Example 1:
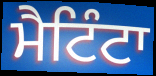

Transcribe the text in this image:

ਮੈਟਿੰਟਾ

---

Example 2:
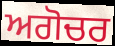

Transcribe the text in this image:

ਅਗੋਚਰ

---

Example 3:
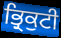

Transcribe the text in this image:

ਭ੍ਰਿਕੁਟੀ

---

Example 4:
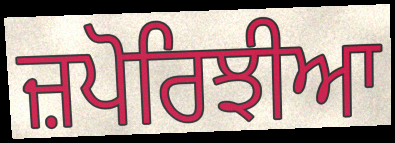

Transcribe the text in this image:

ਜ਼ਪੋਰਿਝੀਆ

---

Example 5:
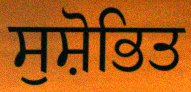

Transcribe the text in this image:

ਸੁਸ਼ੋਭਿਤ